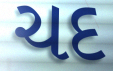
ચદ